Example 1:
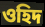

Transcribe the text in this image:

ওহিদ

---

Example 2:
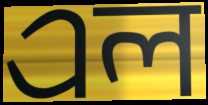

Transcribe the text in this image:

এল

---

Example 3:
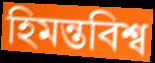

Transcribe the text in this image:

হিমন্তবিশ্ব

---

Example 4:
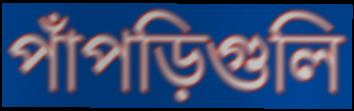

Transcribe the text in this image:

পাঁপড়িগুলি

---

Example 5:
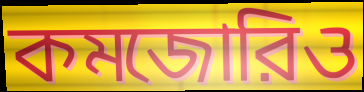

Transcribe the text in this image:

কমজোরিও